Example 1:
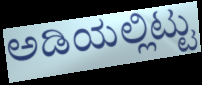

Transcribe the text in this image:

ಅಡಿಯಲ್ಲಿಟ್ಟು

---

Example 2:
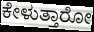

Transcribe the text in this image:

ಕೇಳುತ್ತಾರೋ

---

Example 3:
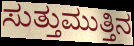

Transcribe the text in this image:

ಸುತ್ತುಮುತ್ತಿನ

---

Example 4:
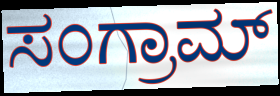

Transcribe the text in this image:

ಸಂಗ್ರಾಮ್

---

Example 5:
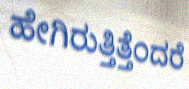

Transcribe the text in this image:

ಹೇಗಿರುತ್ತಿತ್ತೆಂದರೆ